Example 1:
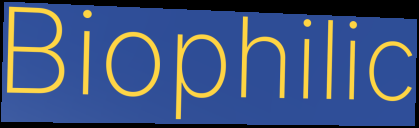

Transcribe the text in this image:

Biophilic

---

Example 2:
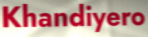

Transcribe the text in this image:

Khandiyero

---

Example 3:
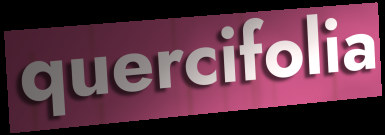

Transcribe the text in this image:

quercifolia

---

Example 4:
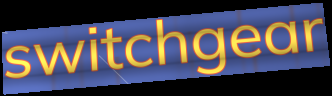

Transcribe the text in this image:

switchgear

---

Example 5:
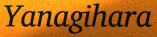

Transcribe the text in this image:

Yanagihara